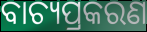
ବାଚ୍ୟପ୍ରକରଣ